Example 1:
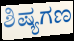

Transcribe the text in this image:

ಶಿಷ್ಯಗಣ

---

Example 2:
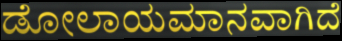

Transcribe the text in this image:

ಡೋಲಾಯಮಾನವಾಗಿದೆ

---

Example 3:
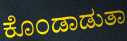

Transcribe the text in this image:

ಕೊಂಡಾಡುತಾ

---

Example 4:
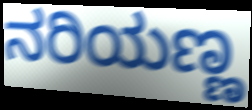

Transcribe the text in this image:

ನರಿಯಣ್ಣ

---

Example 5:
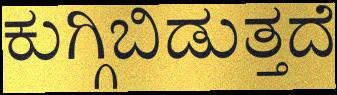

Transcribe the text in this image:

ಕುಗ್ಗಿಬಿಡುತ್ತದೆ